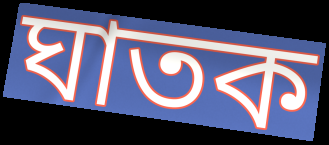
ঘাতক